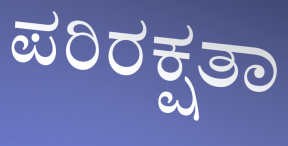
ಪರಿರಕ್ಷತಾ